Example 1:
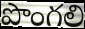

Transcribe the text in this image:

పొంగలి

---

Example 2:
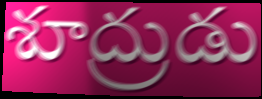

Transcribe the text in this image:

శూద్రుడు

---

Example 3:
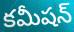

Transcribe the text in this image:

కమీషన్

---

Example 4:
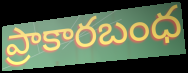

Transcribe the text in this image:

ప్రాకారబంధ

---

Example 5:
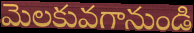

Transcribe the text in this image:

మెలకువగానుండి